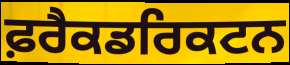
ਫ਼ਰੈਕਡਰਿਕਟਨ